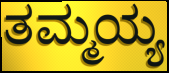
ತಮ್ಮಯ್ಯ